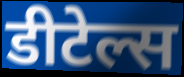
डीटेल्स